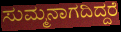
ಸುಮ್ಮನಾಗದಿದ್ದರೆ